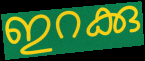
ഇറക്കു